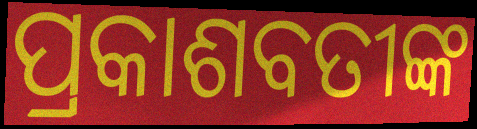
ପ୍ରକାଶବତୀଙ୍କ